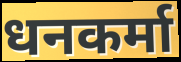
धनकर्मा